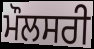
ਮੌਲਸਰੀ